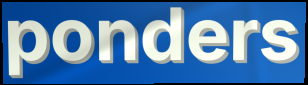
ponders